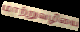
மாற்றுவழியை